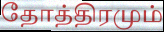
தோத்திரமும்